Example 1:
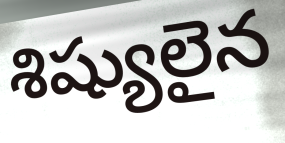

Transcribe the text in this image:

శిష్యులైన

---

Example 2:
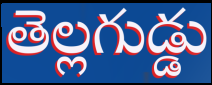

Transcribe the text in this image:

తెల్లగుడ్డు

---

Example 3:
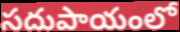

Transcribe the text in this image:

సదుపాయంలో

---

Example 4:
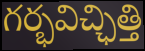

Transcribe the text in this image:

గర్భవిచ్ఛిత్తి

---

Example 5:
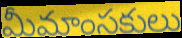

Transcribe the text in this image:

మీమాంసకులు